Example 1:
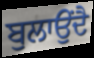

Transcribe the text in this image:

ਬੁਲਾਉਂਦੈ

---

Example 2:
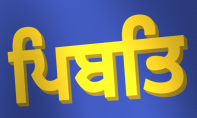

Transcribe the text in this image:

ਪਿਬਤਿ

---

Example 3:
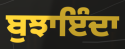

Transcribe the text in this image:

ਬੁਝਾਇੰਦਾ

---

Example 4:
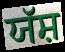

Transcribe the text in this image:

ਯੱਸ਼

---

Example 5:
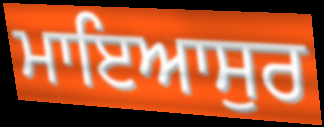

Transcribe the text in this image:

ਮਾਇਆਸੁਰ